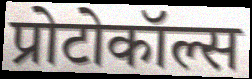
प्रोटोकॉल्स